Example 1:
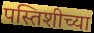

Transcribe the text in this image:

पस्तिशीच्या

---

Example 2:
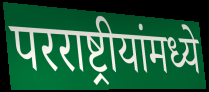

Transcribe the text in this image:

परराष्ट्रीयांमध्ये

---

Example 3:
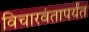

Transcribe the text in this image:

विचारवंतापर्यंत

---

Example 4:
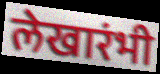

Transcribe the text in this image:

लेखारंभी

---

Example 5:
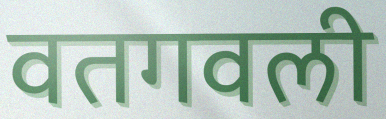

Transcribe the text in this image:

वतगवली